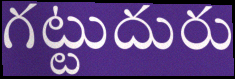
గట్టుదురు